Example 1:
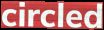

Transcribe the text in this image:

circled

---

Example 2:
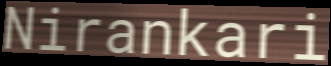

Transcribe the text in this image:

Nirankari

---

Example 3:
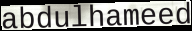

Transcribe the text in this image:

abdulhameed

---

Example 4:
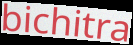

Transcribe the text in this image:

bichitra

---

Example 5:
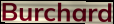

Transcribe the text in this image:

Burchard